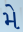
મે